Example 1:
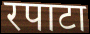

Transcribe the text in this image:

रपाटा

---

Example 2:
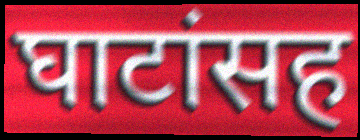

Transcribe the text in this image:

घाटांसह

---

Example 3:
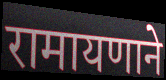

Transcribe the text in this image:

रामायणाने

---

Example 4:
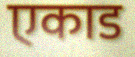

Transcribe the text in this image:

एकाड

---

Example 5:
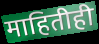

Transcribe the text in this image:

माहितीही